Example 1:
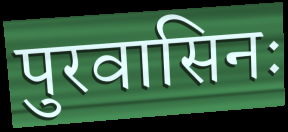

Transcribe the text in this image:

पुरवासिनः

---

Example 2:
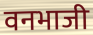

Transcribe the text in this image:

वनभाजी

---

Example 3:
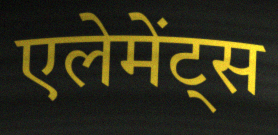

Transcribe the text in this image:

एलेमेंट्स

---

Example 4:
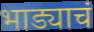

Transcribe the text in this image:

भाड्याचं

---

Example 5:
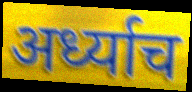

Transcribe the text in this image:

अर्ध्याच